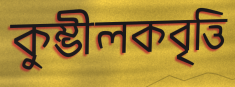
কুম্ভীলকবৃত্তি